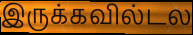
இருக்கவில்டல